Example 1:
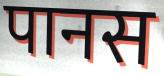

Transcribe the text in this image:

पानस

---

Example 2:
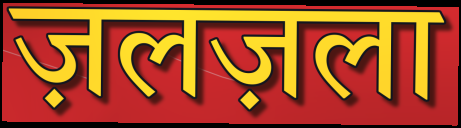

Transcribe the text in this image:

ज़लज़ला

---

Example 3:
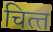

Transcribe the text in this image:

चित्‍त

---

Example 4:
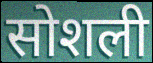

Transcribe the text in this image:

सोशली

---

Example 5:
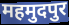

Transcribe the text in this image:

महमुदपुर